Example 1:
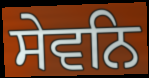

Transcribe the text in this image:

ਸੇਵਨਿ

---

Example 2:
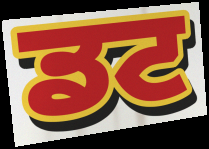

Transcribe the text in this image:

ਡਟ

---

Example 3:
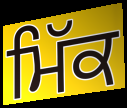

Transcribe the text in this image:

ਮਿੱਕ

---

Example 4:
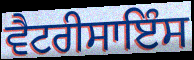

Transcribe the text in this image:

ਵੈਟਰੀਸਾਇੰਸ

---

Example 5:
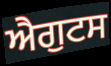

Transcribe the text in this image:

ਐਗੁਟਸ